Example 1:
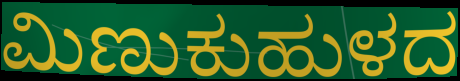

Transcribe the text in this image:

ಮಿಣುಕುಹುಳದ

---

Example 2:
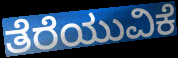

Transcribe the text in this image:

ತೆರೆಯುವಿಕೆ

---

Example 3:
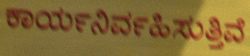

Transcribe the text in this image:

ಕಾರ್ಯನಿರ್ವಹಿಸುತ್ತಿವೆ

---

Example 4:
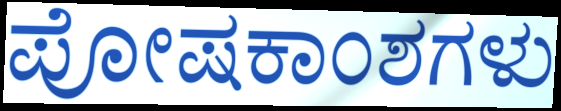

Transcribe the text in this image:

ಪೋಷಕಾಂಶಗಳು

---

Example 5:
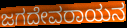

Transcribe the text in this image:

ಜಗದೇವರಾಯನ